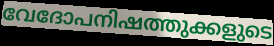
വേദോപനിഷത്തുക്കളുടെ